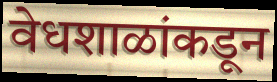
वेधशाळांकडून